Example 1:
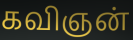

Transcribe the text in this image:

கவிஞன்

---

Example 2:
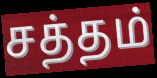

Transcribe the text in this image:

சத்தம்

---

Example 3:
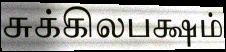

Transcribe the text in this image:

சுக்கிலபக்ஷம்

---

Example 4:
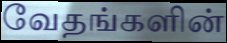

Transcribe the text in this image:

வேதங்களின்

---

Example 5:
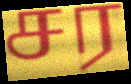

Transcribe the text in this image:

சர